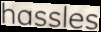
hassles